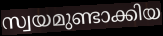
സ്വയമുണ്ടാക്കിയ